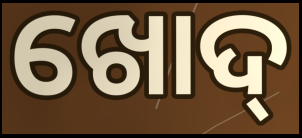
ଖୋଦ୍